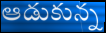
ఆడుకున్న